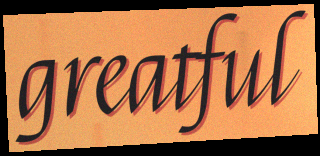
greatful